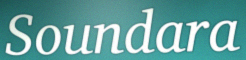
Soundara